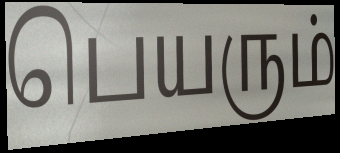
பெயரும்